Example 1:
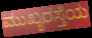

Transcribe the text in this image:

ಮುಖ್ಯರಸ್ತೆಯ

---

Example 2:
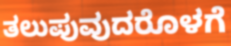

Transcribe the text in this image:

ತಲುಪುವುದರೊಳಗೆ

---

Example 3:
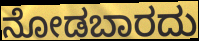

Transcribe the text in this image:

ನೋಡಬಾರದು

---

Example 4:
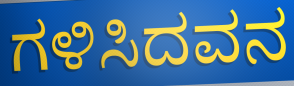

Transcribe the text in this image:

ಗಳಿಸಿದವನ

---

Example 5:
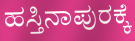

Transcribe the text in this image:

ಹಸ್ತಿನಾಪುರಕ್ಕೆ